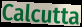
Calcutta